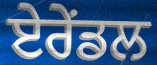
ਏਰੇਂਡਲ